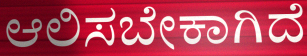
ಆಲಿಸಬೇಕಾಗಿದೆ